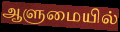
ஆளுமையில்